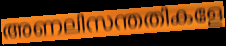
അണലിസന്തതികളേ